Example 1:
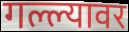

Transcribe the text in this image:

गल्ल्यावर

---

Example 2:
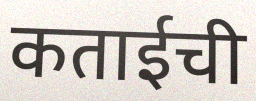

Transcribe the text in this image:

कताईची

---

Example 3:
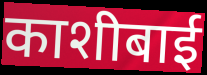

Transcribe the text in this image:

काशीबाई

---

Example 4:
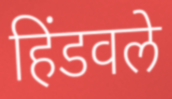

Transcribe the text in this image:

हिंडवले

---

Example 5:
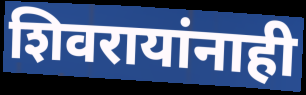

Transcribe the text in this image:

शिवरायांनाही